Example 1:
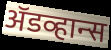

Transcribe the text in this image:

ॲडव्हान्स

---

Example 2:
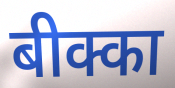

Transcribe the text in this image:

बीक्का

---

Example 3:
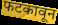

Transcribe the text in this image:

फटकावून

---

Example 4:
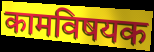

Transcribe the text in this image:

कामविषयक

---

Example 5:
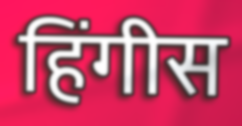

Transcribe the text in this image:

हिंगीस